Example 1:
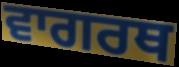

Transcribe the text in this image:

ਵਾਗਰਥ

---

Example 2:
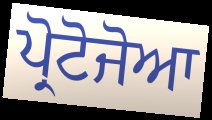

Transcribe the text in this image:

ਪ੍ਰੋਟੋਜੋਆ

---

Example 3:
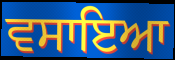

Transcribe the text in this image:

ਵਸਾਇਆ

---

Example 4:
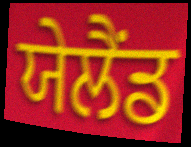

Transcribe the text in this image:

ਯੇਲੈਂਡ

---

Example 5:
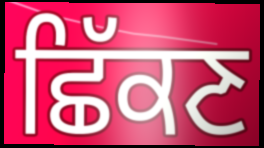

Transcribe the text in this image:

ਛਿੱਕਣ